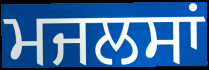
ਮਜਲਸਾਂ